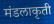
मंडलाकृती